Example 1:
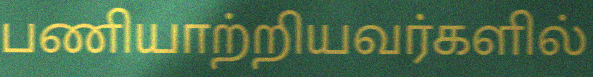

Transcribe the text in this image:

பணியாற்றியவர்களில்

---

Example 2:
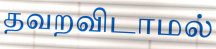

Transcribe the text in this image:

தவறவிடாமல்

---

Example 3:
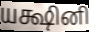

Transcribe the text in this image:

யக்ஷினி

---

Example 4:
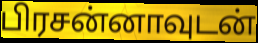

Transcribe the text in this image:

பிரசன்னாவுடன்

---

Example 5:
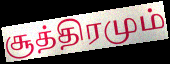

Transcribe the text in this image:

சூத்திரமும்